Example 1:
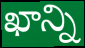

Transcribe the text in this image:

ఖాన్ని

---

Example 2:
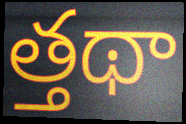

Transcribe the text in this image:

త్తథా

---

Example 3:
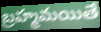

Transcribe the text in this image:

బ్రహ్మమయితే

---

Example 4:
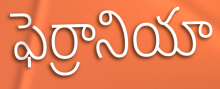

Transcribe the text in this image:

ఫెర్రానియా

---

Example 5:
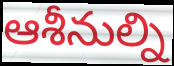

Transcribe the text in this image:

ఆశీనుల్ని